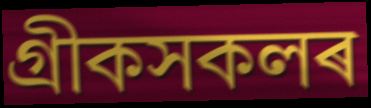
গ্ৰীকসকলৰ